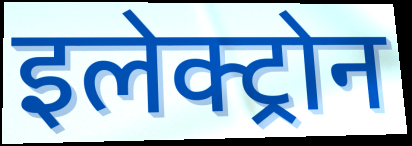
इलेक्ट्रोन